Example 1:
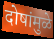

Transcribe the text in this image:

दोषांमुळे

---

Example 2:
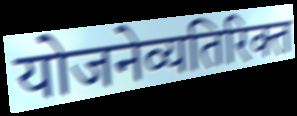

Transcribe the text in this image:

योजनेव्यतिरिक्त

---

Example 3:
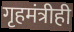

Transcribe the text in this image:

गृहमंत्रीही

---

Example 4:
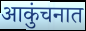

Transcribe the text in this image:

आकुंचनात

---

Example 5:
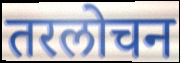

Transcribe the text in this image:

तरलोचन